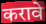
करावे